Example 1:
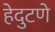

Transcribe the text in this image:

हेदुटणे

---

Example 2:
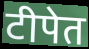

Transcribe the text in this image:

टीपेत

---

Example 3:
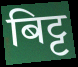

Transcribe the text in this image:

बिट्ट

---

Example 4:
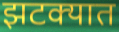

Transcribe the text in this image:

झटक्‍यात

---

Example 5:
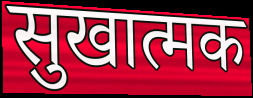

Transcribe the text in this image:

सुखात्मक